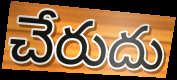
చేరుదు